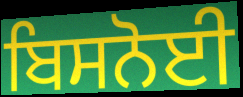
ਬਿਸਨੋਈ